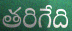
తరిగేది